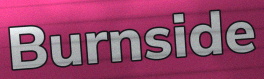
Burnside